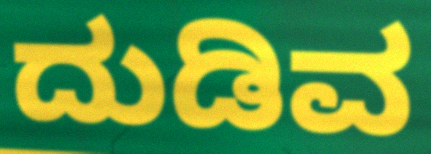
ದುಡಿವ